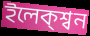
ইলেক্‌শ্বন